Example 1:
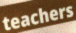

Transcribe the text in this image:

teachers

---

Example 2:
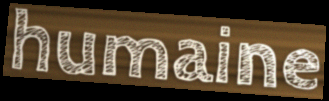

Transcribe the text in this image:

humaine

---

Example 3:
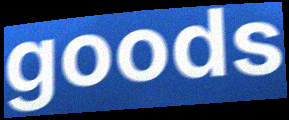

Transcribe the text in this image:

goods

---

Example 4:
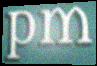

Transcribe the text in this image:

pm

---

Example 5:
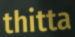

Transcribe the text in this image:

thitta